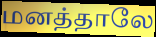
மனத்தாலே